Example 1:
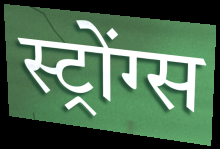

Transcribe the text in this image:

स्ट्रोंग्स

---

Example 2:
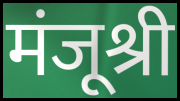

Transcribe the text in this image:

मंजूश्री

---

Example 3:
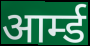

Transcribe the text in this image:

आर्म्ड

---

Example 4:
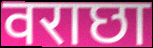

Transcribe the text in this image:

वराछा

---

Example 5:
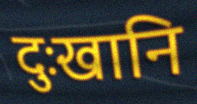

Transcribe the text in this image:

दुःखानि